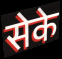
सेके